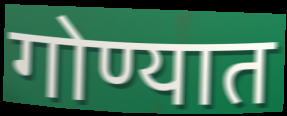
गोण्यात